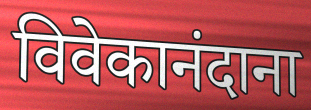
विवेकानंदाना